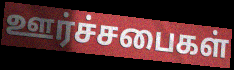
ஊர்ச்சபைகள்